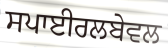
ਸਪਾਈਰਲਬੇਵਲ